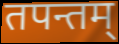
तपन्तम्